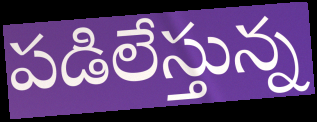
పడిలేస్తున్న